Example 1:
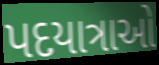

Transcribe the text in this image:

પદયાત્રાઓ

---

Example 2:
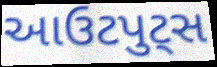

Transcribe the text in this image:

આઉટપુટ્સ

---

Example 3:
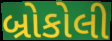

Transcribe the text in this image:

બ્રોકોલી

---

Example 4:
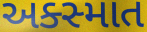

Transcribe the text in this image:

અક્સ્માત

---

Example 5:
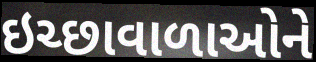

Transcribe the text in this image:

ઇચ્છાવાળાઓને